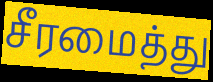
சீரமைத்து